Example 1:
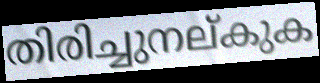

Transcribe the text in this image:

തിരിച്ചുനല്കുക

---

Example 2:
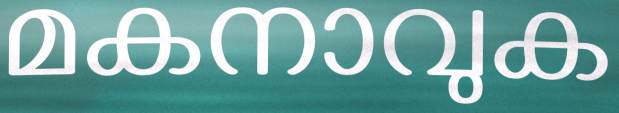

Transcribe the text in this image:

മകനാവുക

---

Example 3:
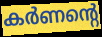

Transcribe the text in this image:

കർണന്റെ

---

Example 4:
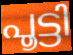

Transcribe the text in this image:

പൂട്ടി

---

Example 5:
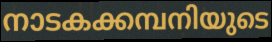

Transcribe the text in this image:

നാടകക്കമ്പനിയുടെ